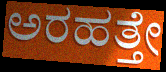
ಅರಹತ್ತೇ